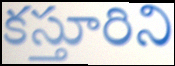
కస్తూరిని